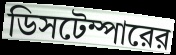
ডিসটেম্পারের